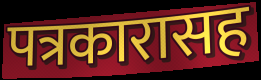
पत्रकारासह